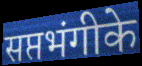
सप्तभंगीके